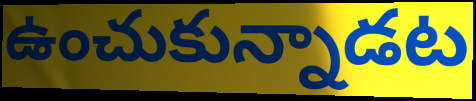
ఉంచుకున్నాడట